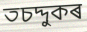
তচদ্দুকৰ